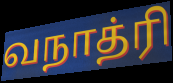
வநாத்ரி